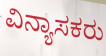
ವಿನ್ಯಾಸಕರು